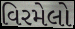
વિરમેલો